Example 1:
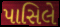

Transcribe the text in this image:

પાસિલે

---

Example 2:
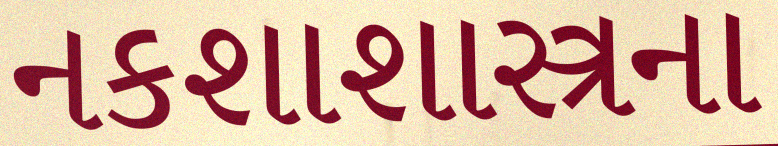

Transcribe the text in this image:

નકશાશાસ્ત્રના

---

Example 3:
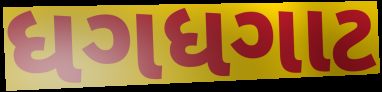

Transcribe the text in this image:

ધગધગાટ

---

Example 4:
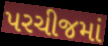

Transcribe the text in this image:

પરચીજમાં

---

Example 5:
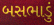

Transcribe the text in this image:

બસભાડું